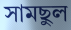
সামছুল